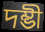
দম্ভী